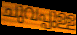
ചുവപ്പുള്ള